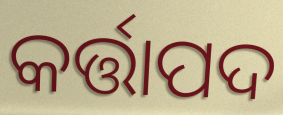
କର୍ତ୍ତାପଦ